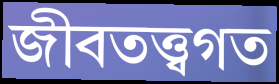
জীবতত্ত্বগত